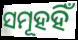
ସମୂହହିଁ